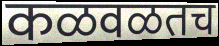
कळवळतच